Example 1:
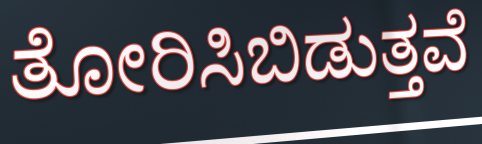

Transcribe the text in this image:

ತೋರಿಸಿಬಿಡುತ್ತವೆ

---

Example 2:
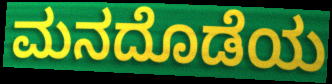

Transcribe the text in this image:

ಮನದೊಡೆಯ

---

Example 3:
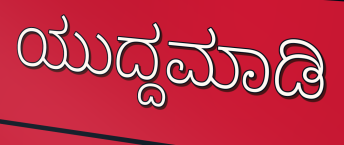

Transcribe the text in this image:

ಯುದ್ದಮಾಡಿ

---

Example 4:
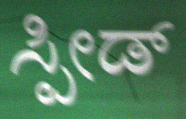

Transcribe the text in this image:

ಸ್ಪೀಡ್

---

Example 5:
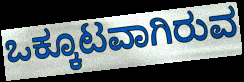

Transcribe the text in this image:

ಒಕ್ಕೂಟವಾಗಿರುವ